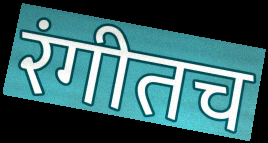
रंगीतच